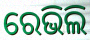
ରେଭିଲି